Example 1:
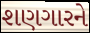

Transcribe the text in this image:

શણગારને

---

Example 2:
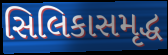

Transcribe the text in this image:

સિલિકાસમૃદ્ધ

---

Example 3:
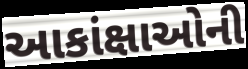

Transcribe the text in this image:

આકાંક્ષાઓની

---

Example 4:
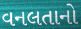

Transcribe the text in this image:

વનલતાનો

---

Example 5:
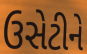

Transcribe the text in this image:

ઉસેટીને